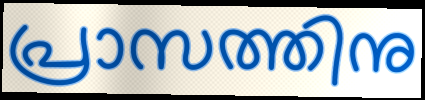
പ്രാസത്തിനു